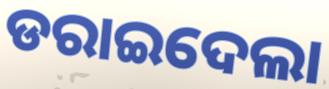
ଡରାଇଦେଲା